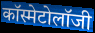
कॉस्मेटोलॉजी